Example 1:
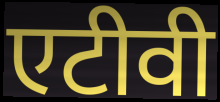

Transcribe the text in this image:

एटीवी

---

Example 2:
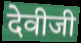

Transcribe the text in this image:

देवीजी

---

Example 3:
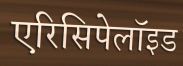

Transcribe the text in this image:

एरिसिपेलॉइड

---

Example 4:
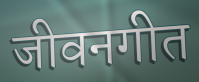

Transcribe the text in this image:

जीवनगीत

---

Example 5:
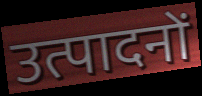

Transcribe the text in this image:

उत्पादनों